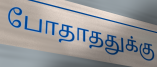
போதாததுக்கு